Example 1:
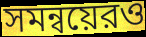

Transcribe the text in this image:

সমন্বয়েরও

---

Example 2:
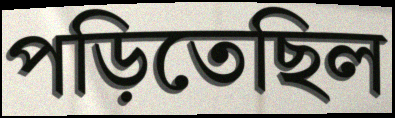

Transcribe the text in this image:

পড়িতেছিল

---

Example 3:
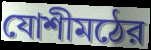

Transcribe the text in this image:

যোশীমঠের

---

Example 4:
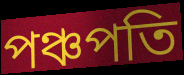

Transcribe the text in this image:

পঞ্চপতি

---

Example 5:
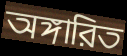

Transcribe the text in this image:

অঙ্গারিত